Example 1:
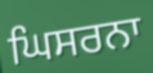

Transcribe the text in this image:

ਘਿਸਰਨਾ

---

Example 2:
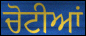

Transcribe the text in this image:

ਚੋਟੀਆਂ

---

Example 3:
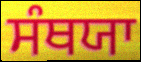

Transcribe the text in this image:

ਸੰਥਯਾ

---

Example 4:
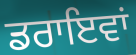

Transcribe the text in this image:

ਡਰਾਇਵਾਂ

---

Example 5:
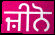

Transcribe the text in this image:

ਜ਼ੀਨੋ